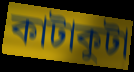
কাটাকুটা